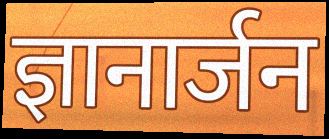
ज्ञानार्जन